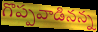
గొప్పవాడినన్న